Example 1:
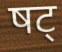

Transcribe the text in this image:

षट्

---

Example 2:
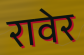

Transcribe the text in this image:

रावेर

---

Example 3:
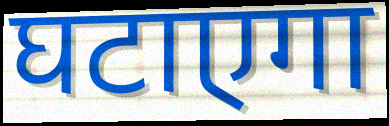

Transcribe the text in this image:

घटाएगा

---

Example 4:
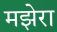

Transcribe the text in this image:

मझेरा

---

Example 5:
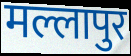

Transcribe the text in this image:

मल्लापुर